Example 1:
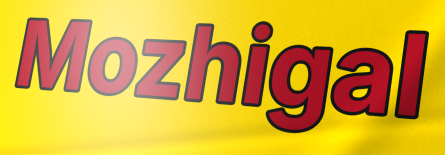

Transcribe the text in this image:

Mozhigal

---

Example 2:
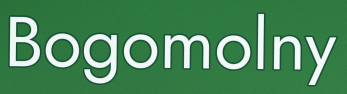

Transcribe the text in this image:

Bogomolny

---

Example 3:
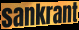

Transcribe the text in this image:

sankrant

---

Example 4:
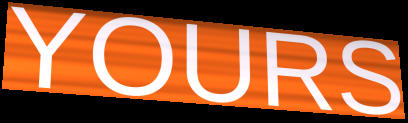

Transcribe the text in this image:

YOURS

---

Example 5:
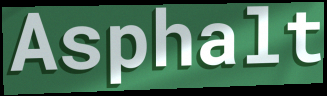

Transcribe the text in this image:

Asphalt